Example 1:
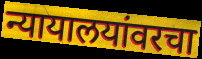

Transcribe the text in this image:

न्यायालयांवरचा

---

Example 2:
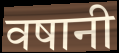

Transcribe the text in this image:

वषानी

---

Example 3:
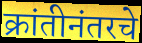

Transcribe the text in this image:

क्रांतीनंतरचे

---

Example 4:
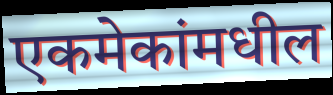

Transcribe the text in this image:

एकमेकांमधील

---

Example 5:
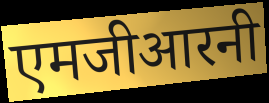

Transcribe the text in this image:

एमजीआरनी